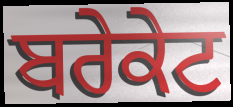
ਬਰੇਕੇਟ